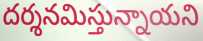
దర్శనమిస్తున్నాయని